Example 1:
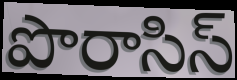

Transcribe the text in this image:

పొరాసిస్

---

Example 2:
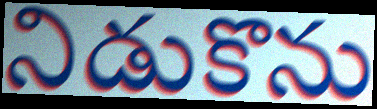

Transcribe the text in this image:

నిడుకొను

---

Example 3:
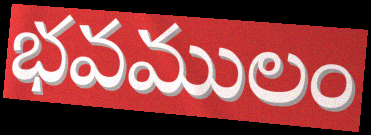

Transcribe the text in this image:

భవములం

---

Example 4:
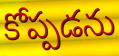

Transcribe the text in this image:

కోప్పడను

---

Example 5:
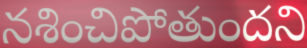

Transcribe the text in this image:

నశించిపోతుందని